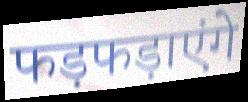
फड़फड़ाएंगे